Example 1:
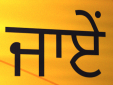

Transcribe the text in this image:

ਜਾਏਂ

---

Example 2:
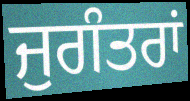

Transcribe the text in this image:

ਜੁਗੰਤਰਾਂ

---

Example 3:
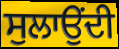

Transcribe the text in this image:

ਸੁਲਾਉਂਦੀ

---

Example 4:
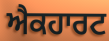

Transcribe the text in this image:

ਐਕਹਾਰਟ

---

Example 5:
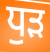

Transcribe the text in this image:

ਧੁੜ